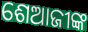
ଶେଆଜୀଙ୍କ